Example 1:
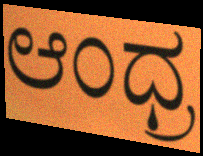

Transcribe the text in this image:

ಆಂಧ್ರ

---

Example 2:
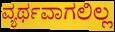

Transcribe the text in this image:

ವ್ಯರ್ಥವಾಗಲಿಲ್ಲ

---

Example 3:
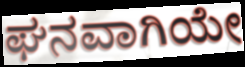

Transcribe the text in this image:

ಘನವಾಗಿಯೇ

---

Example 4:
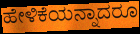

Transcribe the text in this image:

ಹೇಳಿಕೆಯನ್ನಾದರೂ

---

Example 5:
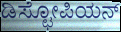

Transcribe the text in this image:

ಡಿಸ್ಟೋಪಿಯನ್